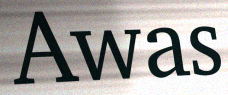
Awas